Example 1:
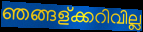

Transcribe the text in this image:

ഞങ്ങള്ക്കറിവില്ല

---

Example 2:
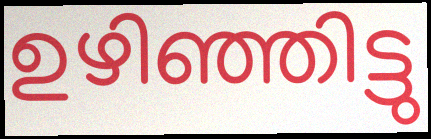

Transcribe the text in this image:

ഉഴിഞ്ഞിട്ടു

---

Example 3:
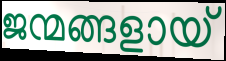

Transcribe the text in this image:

ജന്മങ്ങളായ്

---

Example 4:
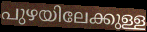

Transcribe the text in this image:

പുഴയിലേക്കുള്ള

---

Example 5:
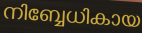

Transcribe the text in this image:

നിബ്ബേധികായ